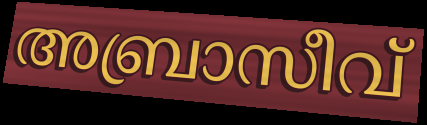
അബ്രാസീവ്